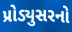
પ્રોડ્યુસરનો